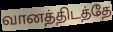
வானத்திடத்தே